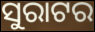
ସୁରାଟର